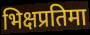
भिक्षप्रतिमा